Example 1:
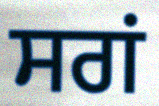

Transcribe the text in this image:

ਸਗਂ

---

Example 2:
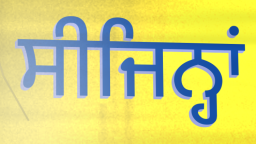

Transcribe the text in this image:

ਸੀਜਿਨ੍ਹਾਂ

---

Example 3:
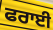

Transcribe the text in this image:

ਫਰਾਈ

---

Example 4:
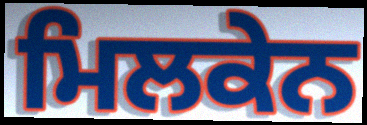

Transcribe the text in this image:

ਮਿਲਕੇਨ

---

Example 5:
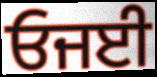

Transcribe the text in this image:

ਓਜਈ